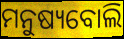
ମନୁଷ୍ୟବୋଲି